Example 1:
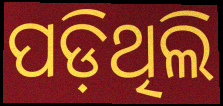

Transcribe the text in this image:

ପଡ଼ିଥିଲି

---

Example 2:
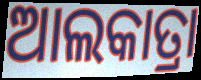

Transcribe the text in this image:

ଆଲକାତ୍ରା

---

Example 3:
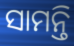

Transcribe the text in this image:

ସାମନ୍ତି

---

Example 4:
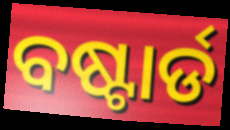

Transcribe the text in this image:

ବଷ୍ଟାର୍ଡ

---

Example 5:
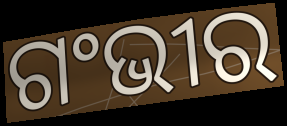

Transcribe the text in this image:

ଗଂଭୀର